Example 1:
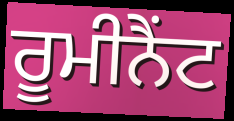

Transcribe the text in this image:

ਰੂਮੀਨੈਂਟ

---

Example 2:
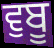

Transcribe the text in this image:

ਵੁਬੂ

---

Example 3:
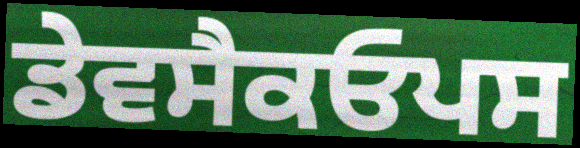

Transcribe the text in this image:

ਡੇਵਸੈਕਓਪਸ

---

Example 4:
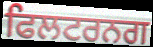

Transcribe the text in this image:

ਫਿਲਟਰਨਗ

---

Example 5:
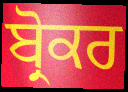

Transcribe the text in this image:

ਬ੍ਰੋਕਰ